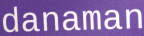
danaman